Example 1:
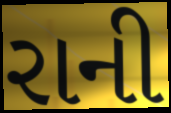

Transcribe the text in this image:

રાની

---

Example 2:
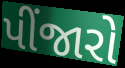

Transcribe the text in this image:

પીંજારો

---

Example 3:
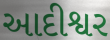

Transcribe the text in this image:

આદીશ્વર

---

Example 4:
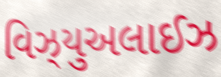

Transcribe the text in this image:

વિઝ્યુઅલાઈઝ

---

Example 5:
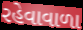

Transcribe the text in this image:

રહેવાવાળા